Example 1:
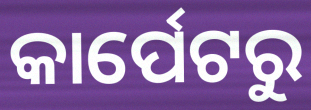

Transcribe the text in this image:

କାର୍ପେଟରୁ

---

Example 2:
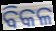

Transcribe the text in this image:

ବିକଳ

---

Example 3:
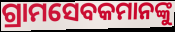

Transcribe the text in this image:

ଗ୍ରାମସେବକମାନଙ୍କୁ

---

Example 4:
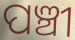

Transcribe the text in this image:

ପଞ୍ଚୀ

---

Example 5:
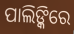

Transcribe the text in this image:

ପାଲିଙ୍କିରେ